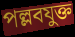
পল্লবযুক্ত